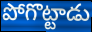
పోగొట్టాడు